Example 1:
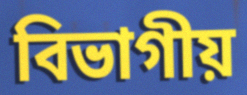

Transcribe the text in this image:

বিভাগীয়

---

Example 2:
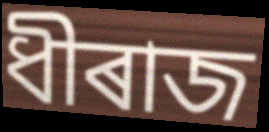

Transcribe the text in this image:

ধীৰাজ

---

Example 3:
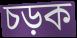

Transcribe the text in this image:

চড়ক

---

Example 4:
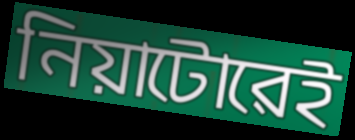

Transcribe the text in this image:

নিয়াটোৱেই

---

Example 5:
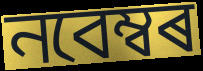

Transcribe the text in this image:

নবেম্বৰ